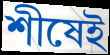
শীষেই